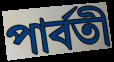
পাৰ্বতী